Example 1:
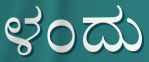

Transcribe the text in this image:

ಳಂದು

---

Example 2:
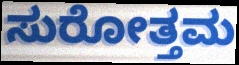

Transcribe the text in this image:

ಸುರೋತ್ತಮ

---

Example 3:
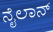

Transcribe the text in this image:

ನೈಲಾನ್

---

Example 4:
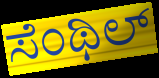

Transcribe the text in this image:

ಸೆಂಥಿಲ್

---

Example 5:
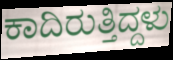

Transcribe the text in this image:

ಕಾದಿರುತ್ತಿದ್ದಳು